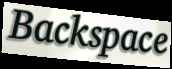
Backspace